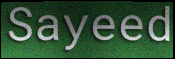
Sayeed